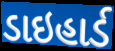
ડાઇહાર્ડ